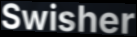
Swisher